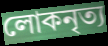
লোকনৃত্য